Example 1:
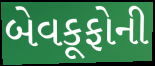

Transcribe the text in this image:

બેવકૂફોની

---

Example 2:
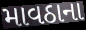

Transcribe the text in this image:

માવઠાના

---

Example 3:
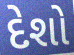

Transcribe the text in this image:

દેશો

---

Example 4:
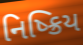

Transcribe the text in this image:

નિષ્ક્રિય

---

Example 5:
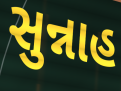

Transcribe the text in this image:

સુન્નાહ